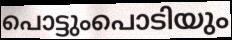
പൊട്ടുംപൊടിയും